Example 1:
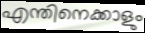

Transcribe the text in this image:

എന്തിനെക്കാളും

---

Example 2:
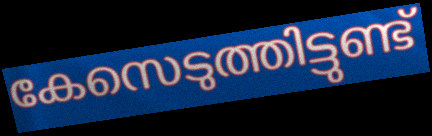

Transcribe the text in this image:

കേസെടുത്തിട്ടുണ്ട്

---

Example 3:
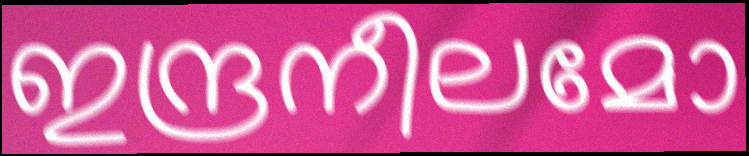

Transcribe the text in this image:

ഇന്ദ്രനീലമോ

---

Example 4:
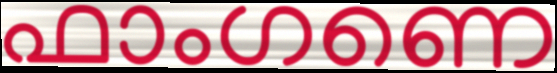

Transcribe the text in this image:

ഫാംഗണെ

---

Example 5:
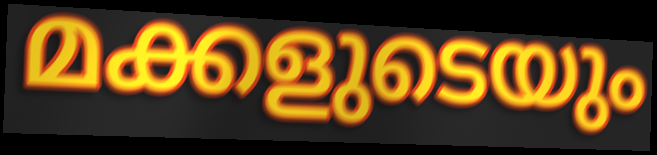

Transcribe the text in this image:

മക്കളുടെയും